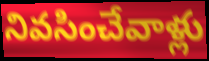
నివసించేవాళ్లు